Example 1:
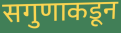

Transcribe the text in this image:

सगुणाकडून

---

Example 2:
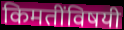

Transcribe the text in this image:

किमतींविषयी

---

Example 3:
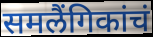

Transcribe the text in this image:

समलैंगिकांचं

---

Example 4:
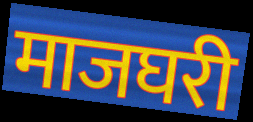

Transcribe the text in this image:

माजघरी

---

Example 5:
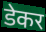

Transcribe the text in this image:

डेकर